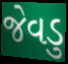
જેવડુ